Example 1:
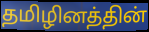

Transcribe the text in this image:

தமிழினத்தின்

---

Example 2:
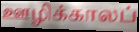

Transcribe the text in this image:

ஊழிக்காலப்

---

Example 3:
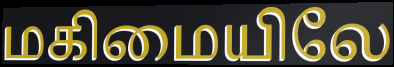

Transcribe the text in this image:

மகிமையிலே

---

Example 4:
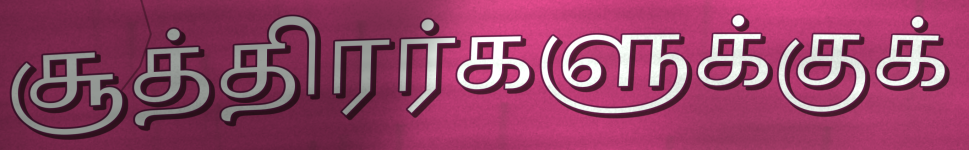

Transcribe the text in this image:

சூத்திரர்களுக்குக்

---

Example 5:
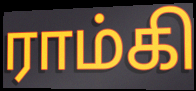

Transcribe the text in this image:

ராம்கி